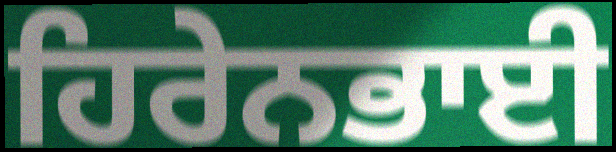
ਹਿਰੇਨਭਾਈ